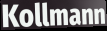
Kollmann